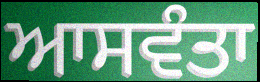
ਆਸਵੰਤਾ